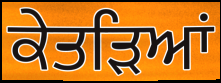
ਕੇਤੜਿਆਂ